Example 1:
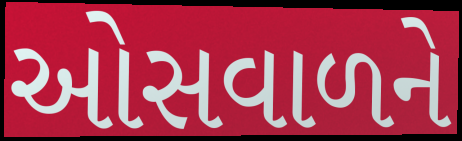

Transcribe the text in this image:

ઓસવાળને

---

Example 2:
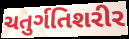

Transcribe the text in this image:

ચતુર્ગતિશરીર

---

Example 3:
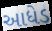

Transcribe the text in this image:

આધેડ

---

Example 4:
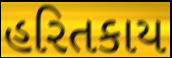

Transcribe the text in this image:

હરિતકાય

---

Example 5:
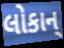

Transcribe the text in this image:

લોકાન્